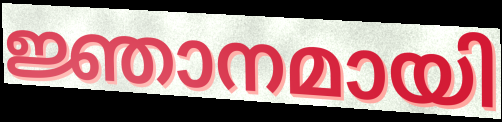
ജ്ഞാനമായി